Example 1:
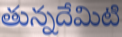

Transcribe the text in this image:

తున్నదేమిటి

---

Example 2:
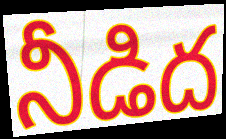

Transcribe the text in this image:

నీడిద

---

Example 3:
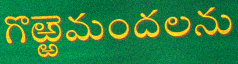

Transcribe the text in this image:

గొఱ్ఱెమందలను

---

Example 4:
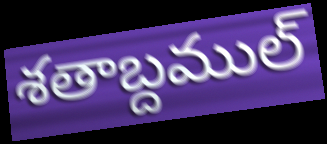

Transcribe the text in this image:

శతాబ్దముల్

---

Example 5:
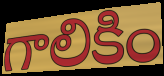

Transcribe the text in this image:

గాలికిం